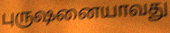
புருஷனையாவது